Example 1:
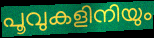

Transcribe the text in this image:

പൂവുകളിനിയും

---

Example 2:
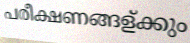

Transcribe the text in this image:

പരീക്ഷണങ്ങള്ക്കും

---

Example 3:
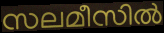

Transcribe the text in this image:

സലമീസിൽ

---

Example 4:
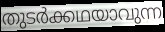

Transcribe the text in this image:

തുടർക്കഥയാവുന്ന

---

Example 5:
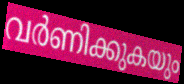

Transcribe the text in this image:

വർണിക്കുകയും